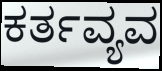
ಕರ್ತವ್ಯವ